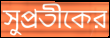
সুপ্রতীকের